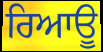
ਰਿਆਊ